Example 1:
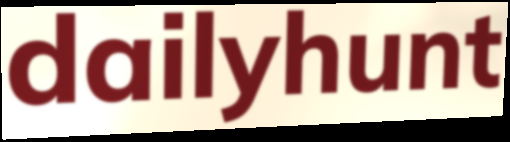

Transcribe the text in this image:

dailyhunt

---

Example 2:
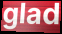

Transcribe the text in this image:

glad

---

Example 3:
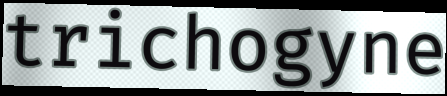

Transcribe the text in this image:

trichogyne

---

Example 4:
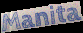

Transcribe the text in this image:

Manita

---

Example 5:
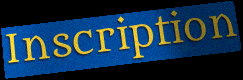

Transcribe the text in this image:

Inscription